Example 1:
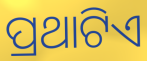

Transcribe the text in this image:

ପ୍ରଥାଟିଏ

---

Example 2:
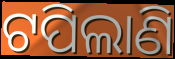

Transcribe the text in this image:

ଟପିଲାଣି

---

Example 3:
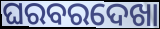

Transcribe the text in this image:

ଘରବରଦେଖା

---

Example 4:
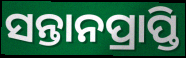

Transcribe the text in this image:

ସନ୍ତାନପ୍ରାପ୍ତି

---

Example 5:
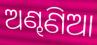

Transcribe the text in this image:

ଅଣ୍ଢଣିଆ